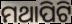
ମଥାପିଟି